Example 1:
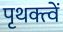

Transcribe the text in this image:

पृथक्त्वें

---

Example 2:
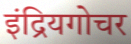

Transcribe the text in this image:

इंद्रियगोचर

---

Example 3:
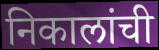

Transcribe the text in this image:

निकालांची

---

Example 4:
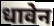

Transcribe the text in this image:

धावेन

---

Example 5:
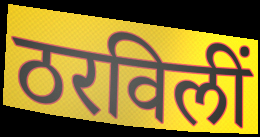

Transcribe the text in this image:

ठरविलीं